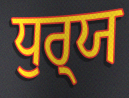
ਧੁਰ੍‍ਯ